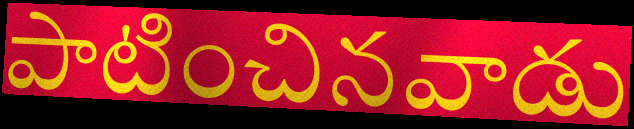
పాటించినవాడు